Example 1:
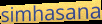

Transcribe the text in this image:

simhasana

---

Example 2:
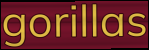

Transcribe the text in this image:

gorillas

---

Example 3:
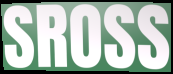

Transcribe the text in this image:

SROSS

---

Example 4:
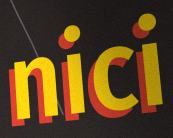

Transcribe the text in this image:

nici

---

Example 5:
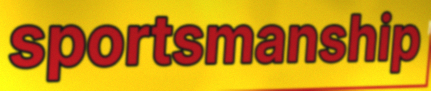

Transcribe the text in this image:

sportsmanship